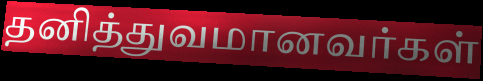
தனித்துவமானவர்கள்